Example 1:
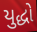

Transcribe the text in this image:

યુદ્ધો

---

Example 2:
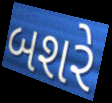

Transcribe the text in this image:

બશરે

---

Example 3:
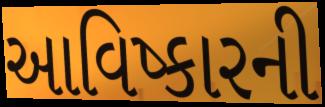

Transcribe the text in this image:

આવિષ્કારની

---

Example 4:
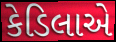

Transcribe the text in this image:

કેડિલાએ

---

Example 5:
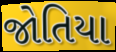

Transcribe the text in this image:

જોતિયા